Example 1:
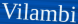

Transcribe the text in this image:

Vilambi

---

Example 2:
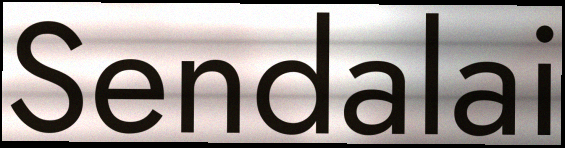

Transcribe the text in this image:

Sendalai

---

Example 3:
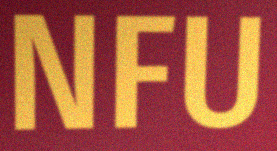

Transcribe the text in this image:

NFU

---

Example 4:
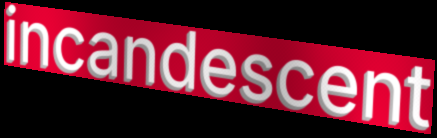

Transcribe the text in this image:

incandescent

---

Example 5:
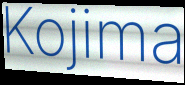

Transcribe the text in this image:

Kojima